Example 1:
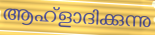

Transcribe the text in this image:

ആഹ്ളാദിക്കുന്നു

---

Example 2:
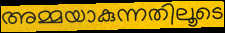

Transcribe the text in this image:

അമ്മയാകുന്നതിലൂടെ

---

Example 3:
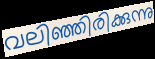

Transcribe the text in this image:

വലിഞ്ഞിരിക്കുന്നു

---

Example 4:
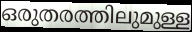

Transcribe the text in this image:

ഒരുതരത്തിലുമുള്ള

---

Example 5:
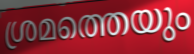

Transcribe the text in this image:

ശ്രമത്തെയും